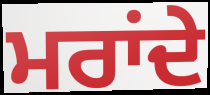
ਮਰਾਂਦੇ